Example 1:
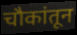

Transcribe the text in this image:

चौकांतून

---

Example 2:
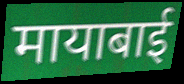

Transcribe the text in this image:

मायाबाई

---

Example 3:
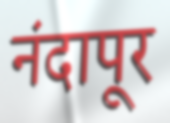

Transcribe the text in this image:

नंदापूर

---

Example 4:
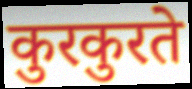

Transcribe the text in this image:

कुरकुरते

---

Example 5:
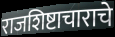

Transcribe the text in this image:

राजशिष्टाचाराचे